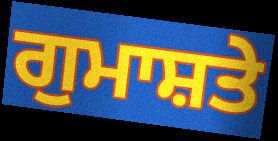
ਗੁਮਾਸ਼ਤੇ